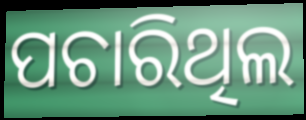
ପଚାରିଥିଲ